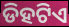
ଡିହଟିଏ